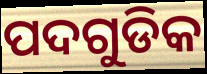
ପଦଗୁଡିକ